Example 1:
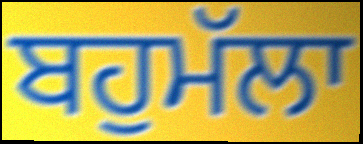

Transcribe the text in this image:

ਬਹੁਮੱਲਾ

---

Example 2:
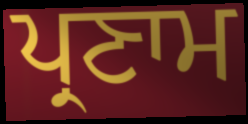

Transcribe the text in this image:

ਪ੍ਰਣਾਮ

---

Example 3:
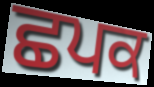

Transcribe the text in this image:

ਛਪਕ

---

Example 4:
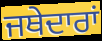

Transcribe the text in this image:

ਜਥੇਦਾਰਾਂ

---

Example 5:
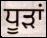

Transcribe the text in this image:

ਧੂਡ਼ਾਂ